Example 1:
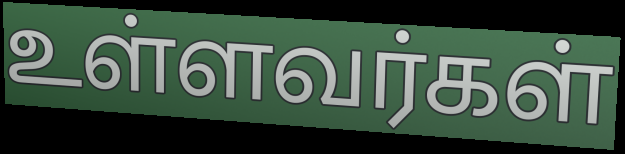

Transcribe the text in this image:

உள்ளவர்கள்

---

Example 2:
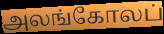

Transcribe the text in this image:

அலங்கோலப்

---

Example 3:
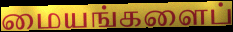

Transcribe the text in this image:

மையங்களைப்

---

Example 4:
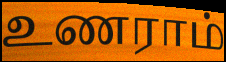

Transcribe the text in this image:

உணராம்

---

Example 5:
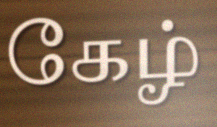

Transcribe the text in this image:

கேழ்